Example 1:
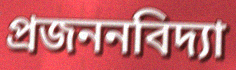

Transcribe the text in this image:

প্রজননবিদ্যা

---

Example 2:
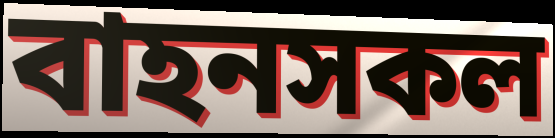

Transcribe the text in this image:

বাহনসকল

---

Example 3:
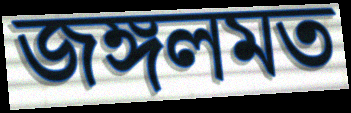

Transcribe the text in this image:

জঙ্গলমত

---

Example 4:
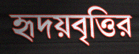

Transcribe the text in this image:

হৃদয়বৃত্তির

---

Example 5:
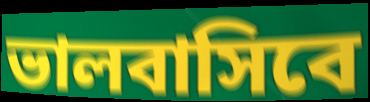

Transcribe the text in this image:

ভালবাসিবে